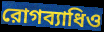
রোগব্যাধিও